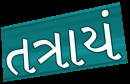
તત્રાયં